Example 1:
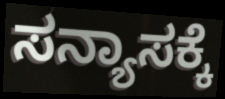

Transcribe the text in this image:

ಸನ್ಯಾಸಕ್ಕೆ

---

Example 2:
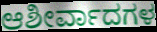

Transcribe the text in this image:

ಆಶೀರ್ವಾದಗಳ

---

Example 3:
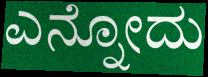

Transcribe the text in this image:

ಎನ್ನೋದು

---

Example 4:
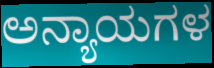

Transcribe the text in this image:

ಅನ್ಯಾಯಗಳ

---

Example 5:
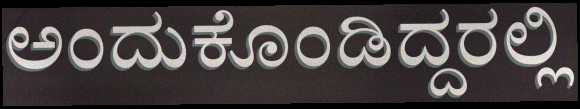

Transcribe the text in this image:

ಅಂದುಕೊಂಡಿದ್ದರಲ್ಲಿ